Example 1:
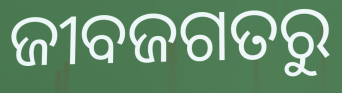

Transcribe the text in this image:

ଜୀବଜଗତରୁ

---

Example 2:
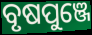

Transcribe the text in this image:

ବୃଷପୁଞ୍ଜେ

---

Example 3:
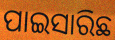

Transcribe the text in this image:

ପାଇସାରିଛ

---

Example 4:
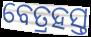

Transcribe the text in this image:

ବେତ୍ରହସ୍ତ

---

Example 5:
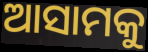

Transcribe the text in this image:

ଆସାମକୁ